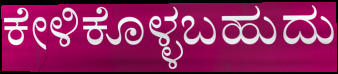
ಕೇಳಿಕೊಳ್ಳಬಹುದು